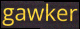
gawker